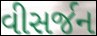
વીસર્જન